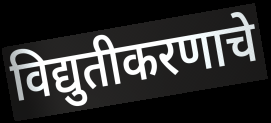
विद्युतीकरणाचे